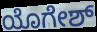
ಯೊಗೇಶ್